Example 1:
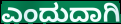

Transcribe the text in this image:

ಎಂದುದಾಗಿ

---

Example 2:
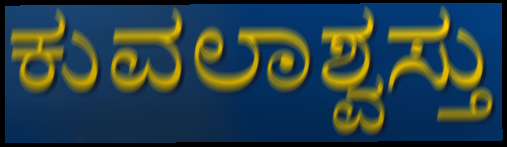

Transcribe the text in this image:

ಕುವಲಾಶ್ವಸ್ತು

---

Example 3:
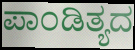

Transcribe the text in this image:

ಪಾಂಡಿತ್ಯದ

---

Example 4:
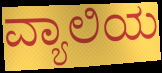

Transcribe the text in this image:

ವ್ಯಾಲಿಯ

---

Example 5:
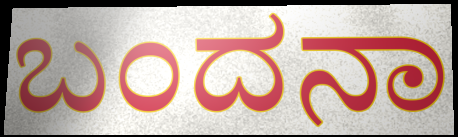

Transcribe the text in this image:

ಬಂದನಾ